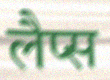
लैप्स